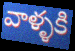
వాళ్ళకి